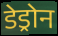
डेड्रोन